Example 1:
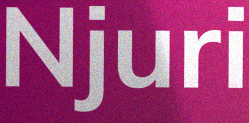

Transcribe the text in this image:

Njuri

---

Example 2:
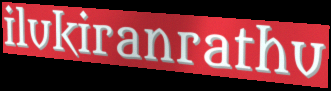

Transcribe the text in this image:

ilukiranrathu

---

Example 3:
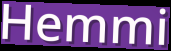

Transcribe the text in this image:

Hemmi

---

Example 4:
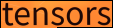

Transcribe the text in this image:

tensors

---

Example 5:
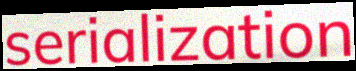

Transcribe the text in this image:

serialization